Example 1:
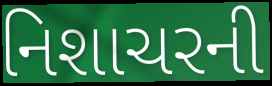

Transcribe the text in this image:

નિશાચરની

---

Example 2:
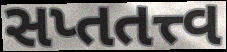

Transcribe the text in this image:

સપ્તતત્ત્વ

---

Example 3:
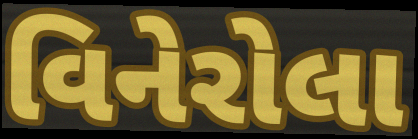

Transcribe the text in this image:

વિનેરોલા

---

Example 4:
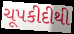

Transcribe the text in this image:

ચૂપકીદીથી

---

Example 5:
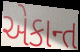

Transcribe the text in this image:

એકાન્ત